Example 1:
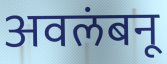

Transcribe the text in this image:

अवलंबनू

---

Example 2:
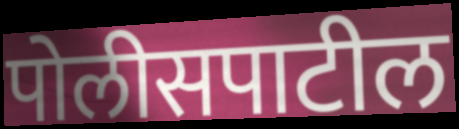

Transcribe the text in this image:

पोलीसपाटील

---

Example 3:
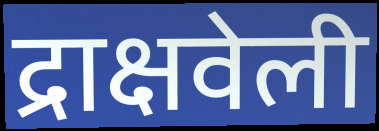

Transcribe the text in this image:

द्राक्षवेली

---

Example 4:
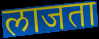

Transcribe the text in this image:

लाजता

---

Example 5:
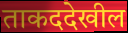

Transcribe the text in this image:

ताकददेखील